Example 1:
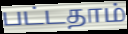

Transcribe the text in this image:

பட்டதாம்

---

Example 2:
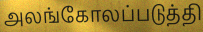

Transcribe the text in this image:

அலங்கோலப்படுத்தி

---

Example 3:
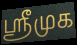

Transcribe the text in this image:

ஸ்ரீமுக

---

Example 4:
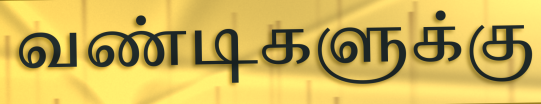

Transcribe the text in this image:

வண்டிகளுக்கு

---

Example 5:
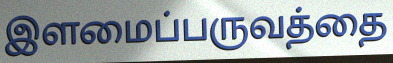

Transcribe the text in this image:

இளமைப்பருவத்தை